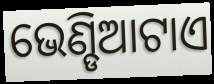
ଭେଣ୍ଡିଆଟାଏ